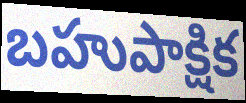
బహుపాక్షిక